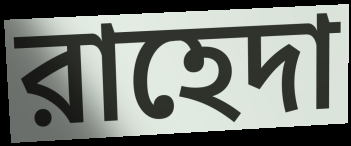
রাহেদা